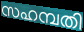
സഹമ്പതി